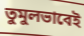
তুমুলভাবেই